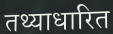
तथ्याधारित